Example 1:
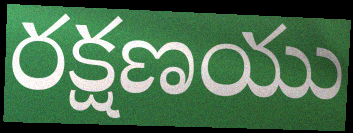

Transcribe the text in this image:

రక్షణయు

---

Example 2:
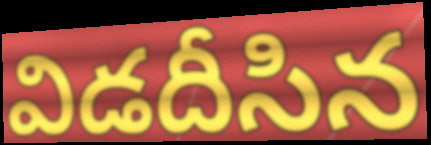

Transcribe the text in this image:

విడదీసిన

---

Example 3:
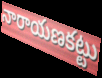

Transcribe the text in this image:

నారాయణకట్టు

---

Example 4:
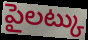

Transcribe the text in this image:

పైలట్కు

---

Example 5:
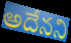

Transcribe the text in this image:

అదేనని